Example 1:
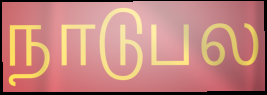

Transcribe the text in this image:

நாடுபல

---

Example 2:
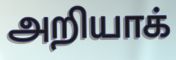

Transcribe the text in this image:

அறியாக்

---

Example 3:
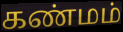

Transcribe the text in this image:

கண்மம்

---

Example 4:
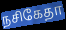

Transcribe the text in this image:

நசிகேதா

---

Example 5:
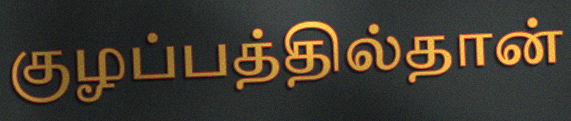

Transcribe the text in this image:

குழப்பத்தில்தான்